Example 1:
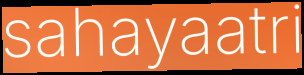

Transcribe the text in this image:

sahayaatri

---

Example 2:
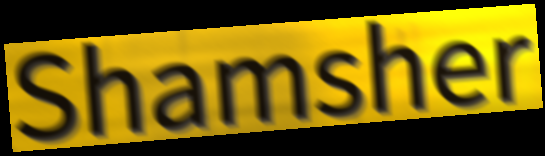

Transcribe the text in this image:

Shamsher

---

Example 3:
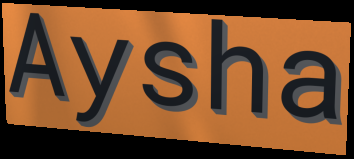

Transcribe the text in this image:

Aysha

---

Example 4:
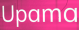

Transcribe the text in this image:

Upama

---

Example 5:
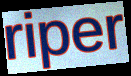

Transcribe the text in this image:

riper